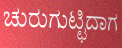
ಚುರುಗುಟ್ಟಿದಾಗ